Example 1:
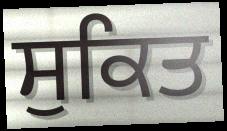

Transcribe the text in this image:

ਸੁਕਿਤ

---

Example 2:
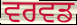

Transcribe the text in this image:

ਵਰਵਡ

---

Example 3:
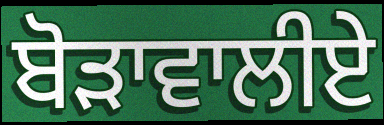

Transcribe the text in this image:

ਬੋੜਾਵਾਲੀਏ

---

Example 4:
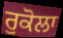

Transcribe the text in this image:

ਰੁਕੋਲਾ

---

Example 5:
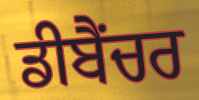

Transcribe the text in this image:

ਡੀਬੈਂਚਰ